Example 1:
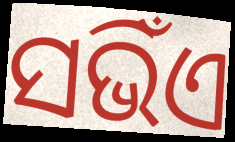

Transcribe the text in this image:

ସଭିଁଏ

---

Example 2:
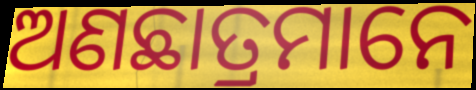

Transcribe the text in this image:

ଅଣଛାତ୍ରମାନେ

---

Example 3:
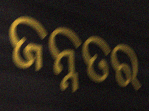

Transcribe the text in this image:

ଜନ୍ନତର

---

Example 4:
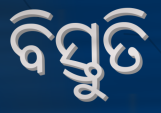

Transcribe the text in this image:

ବିସ୍ତୁତି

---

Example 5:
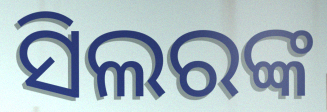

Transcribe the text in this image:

ସିଲରଙ୍କ